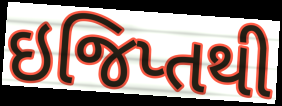
ઇજિપ્તથી